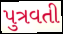
પુત્રવતી